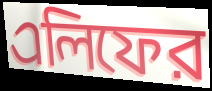
এলিফের